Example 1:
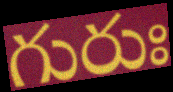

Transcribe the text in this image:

గురుః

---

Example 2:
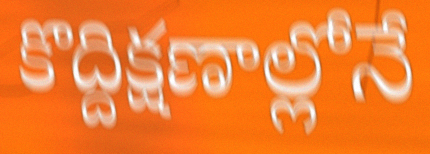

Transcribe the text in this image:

కొద్దిక్షణాల్లోనే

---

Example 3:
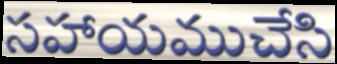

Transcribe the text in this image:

సహాయముచేసి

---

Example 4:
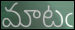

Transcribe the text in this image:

మాటఁ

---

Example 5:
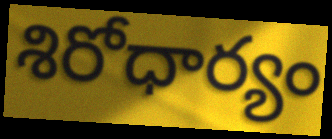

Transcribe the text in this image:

శిరోధార్యం